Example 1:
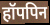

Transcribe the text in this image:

हॉपपिन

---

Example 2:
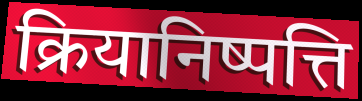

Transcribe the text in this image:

क्रियानिष्पत्ति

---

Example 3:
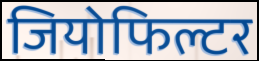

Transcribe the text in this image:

जियोफिल्टर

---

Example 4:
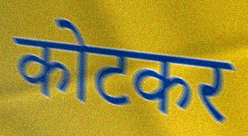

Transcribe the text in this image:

कोटकर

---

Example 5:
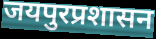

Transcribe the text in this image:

जयपुरप्रशासन